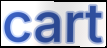
cart